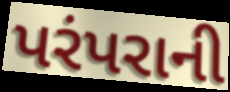
પરંપરાની